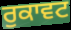
ਰੁਕਾਵਟ